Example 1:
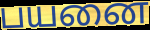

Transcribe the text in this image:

பயனை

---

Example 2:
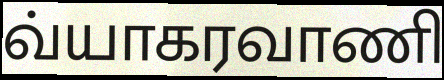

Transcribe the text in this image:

வ்யாகரவாணி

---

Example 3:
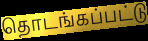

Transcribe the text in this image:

தொடங்கப்பட்டு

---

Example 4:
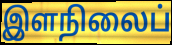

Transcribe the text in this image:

இளநிலைப்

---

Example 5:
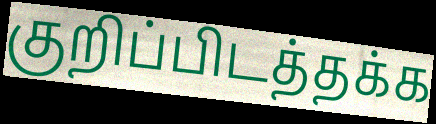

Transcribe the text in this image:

குறிப்பிடத்தக்க